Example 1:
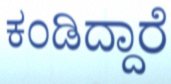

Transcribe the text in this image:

ಕಂಡಿದ್ದಾರೆ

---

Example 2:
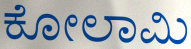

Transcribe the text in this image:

ಕೋಲಾಮಿ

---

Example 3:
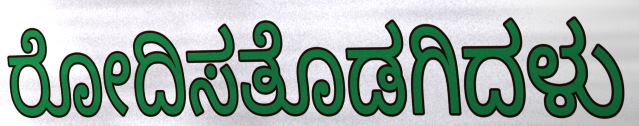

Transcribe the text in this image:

ರೋದಿಸತೊಡಗಿದಳು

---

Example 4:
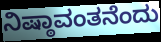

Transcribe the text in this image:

ನಿಷ್ಠಾವಂತನೆಂದು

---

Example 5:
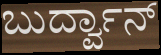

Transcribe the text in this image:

ಬುರ್ದ್ವಾನ್